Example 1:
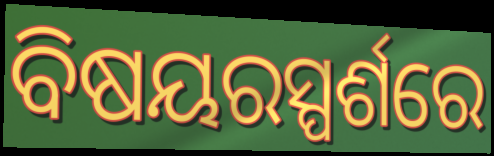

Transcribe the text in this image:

ବିଷୟରସ୍ପର୍ଶରେ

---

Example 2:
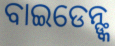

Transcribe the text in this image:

ବାଇଡେନ୍ଙ୍କ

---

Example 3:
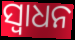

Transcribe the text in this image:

ସ୍ଵାଧନ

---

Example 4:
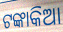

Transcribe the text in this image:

ଟଙ୍କାକିଆ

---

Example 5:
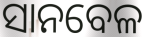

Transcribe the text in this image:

ସାନବେଳ